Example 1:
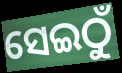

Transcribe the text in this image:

ସେଇଠୁଁ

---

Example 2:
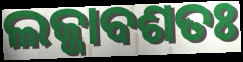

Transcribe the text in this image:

ଲଜ୍ଜାବଶତଃ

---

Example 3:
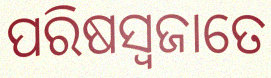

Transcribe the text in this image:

ପରିଷସ୍ଵଜାତେ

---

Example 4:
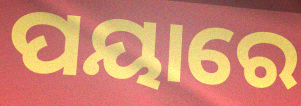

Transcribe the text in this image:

ପୟାରେ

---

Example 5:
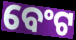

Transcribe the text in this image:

ବେଂଟ